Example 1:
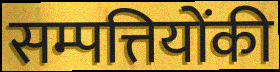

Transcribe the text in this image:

सम्पत्तियोंकी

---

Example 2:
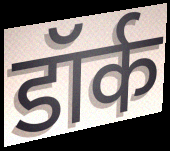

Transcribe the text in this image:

डॉर्क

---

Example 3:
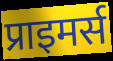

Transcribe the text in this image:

प्राइमर्स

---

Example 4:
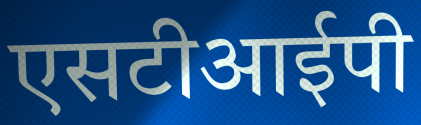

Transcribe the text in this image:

एसटीआईपी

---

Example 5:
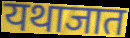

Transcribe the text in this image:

यथाजात